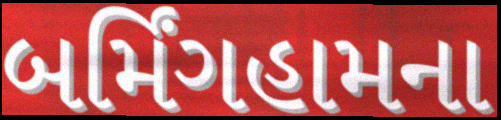
બર્મિંગહામના